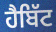
ਹੈਬਿੱਟ